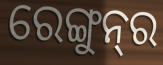
ରେଙ୍ଗୁନ୍‌ର